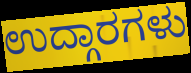
ಉದ್ಗಾರಗಳು